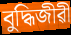
বুদ্ধিজীৱী